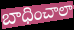
బాధించాలా